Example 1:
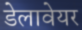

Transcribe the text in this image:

डेलावेयर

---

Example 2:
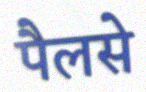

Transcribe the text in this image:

पैलसे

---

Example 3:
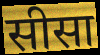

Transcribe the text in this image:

सीसा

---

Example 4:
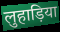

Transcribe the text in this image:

लुहाड़िया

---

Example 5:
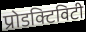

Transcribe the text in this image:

प्रोडक्टिविटी